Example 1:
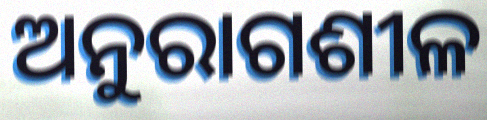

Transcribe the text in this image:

ଅନୁରାଗଶୀଳ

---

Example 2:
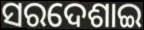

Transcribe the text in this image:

ସରଦେଶାଇ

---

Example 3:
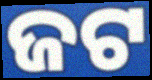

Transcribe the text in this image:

ଜଟ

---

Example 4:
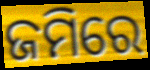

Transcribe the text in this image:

ଜମିରେ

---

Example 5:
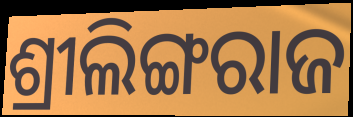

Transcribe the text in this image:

ଶ୍ରୀଲିଙ୍ଗରାଜ